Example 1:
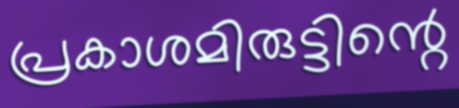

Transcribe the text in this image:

പ്രകാശമിരുട്ടിന്റെ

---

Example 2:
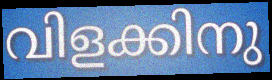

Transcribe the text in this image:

വിളക്കിനു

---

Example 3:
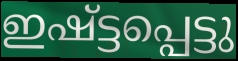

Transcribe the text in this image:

ഇഷ്ട്ടപ്പെട്ടു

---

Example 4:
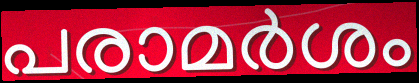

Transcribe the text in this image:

പരാമർശം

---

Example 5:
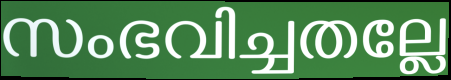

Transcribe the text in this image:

സംഭവിച്ചതല്ലേ